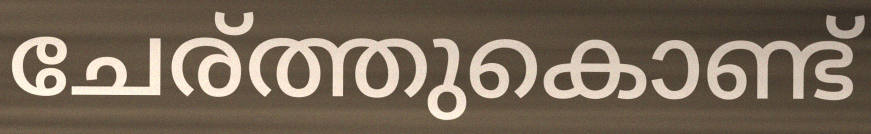
ചേര്ത്തുകൊണ്ട്